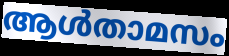
ആൾതാമസം